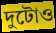
দুটোও